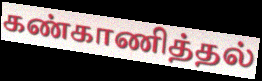
கண்காணித்தல்